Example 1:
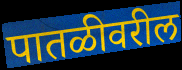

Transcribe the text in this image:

पातळीवरील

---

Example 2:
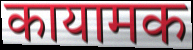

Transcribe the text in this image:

कायामक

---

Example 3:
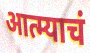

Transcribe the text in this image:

आत्म्याचं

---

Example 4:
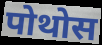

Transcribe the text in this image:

पोथोस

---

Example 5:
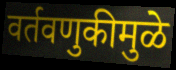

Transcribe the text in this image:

वर्तवणुकीमुळे